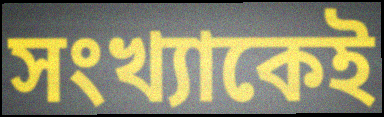
সংখ্যাকেই